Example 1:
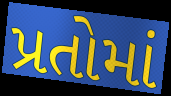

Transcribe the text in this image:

પ્રતોમાં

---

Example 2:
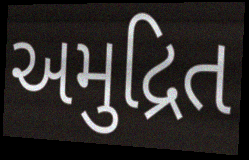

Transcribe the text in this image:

અમુદ્રિત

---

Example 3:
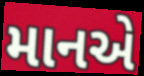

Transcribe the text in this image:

માનએ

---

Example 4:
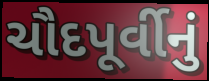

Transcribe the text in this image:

ચૌદપૂર્વીનું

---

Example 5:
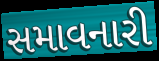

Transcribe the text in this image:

સમાવનારી